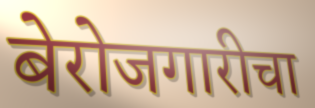
बेरोजगारीचा